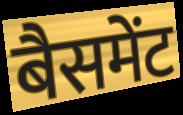
बैसमेंट